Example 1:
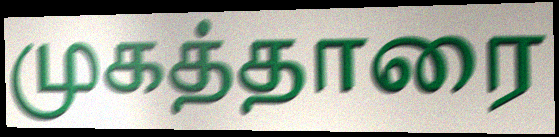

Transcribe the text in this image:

முகத்தாரை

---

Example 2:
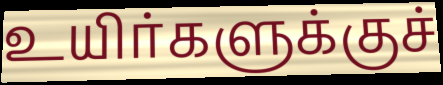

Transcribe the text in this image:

உயிர்களுக்குச்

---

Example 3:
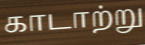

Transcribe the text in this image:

காடாற்று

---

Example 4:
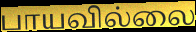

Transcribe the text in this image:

பாயவில்லை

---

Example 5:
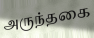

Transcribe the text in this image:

அருந்தகை